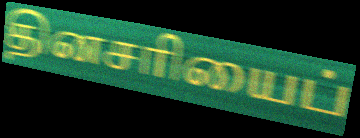
தினசரியைப்